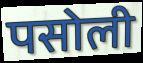
पसोली